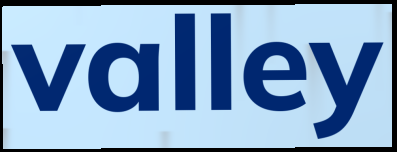
valley